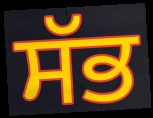
ਸੱਭ